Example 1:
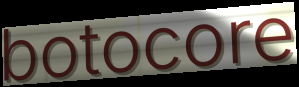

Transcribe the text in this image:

botocore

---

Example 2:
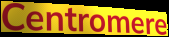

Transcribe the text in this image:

Centromere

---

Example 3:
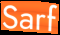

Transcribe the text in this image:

Sarf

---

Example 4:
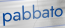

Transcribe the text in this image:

pabbato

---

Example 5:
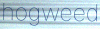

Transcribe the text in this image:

hogweed